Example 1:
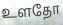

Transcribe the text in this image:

உளதோ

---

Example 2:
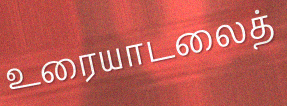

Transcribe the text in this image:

உரையாடலைத்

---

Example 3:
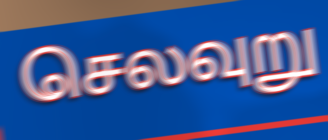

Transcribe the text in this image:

செலவுறு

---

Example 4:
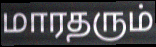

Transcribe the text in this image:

மாரதரும்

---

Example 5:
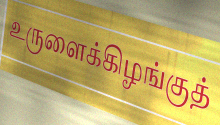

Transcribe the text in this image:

உருளைக்கிழங்குத்